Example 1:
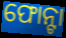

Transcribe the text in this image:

ଫୋନ୍ଟା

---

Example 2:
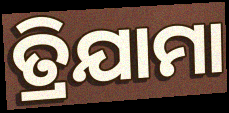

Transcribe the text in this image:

ତ୍ରିଯାମା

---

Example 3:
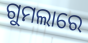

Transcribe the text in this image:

ଗୁମଲାରେ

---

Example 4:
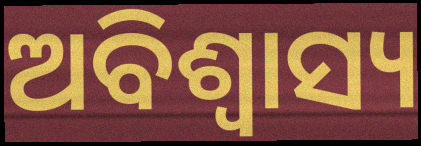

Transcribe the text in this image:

ଅବିଶ୍ଵାସ୍ୟ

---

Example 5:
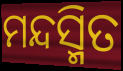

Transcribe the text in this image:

ମନ୍ଦସ୍ମିତ